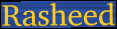
Rasheed